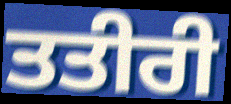
ਤਤੀਰੀ